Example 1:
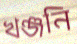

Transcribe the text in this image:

খঞ্জনি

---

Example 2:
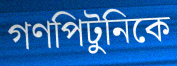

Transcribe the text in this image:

গণপিটুনিকে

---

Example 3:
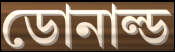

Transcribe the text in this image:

ডোনাল্ড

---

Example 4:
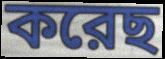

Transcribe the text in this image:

করেছ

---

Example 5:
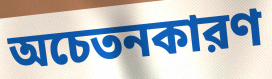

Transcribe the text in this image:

অচেতনকারণ